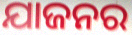
ଯାଜନର